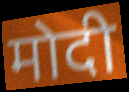
मोदी